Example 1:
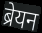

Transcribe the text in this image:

ब्रेयन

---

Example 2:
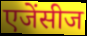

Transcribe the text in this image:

एजेंसीज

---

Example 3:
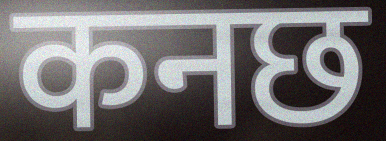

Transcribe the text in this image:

कनछ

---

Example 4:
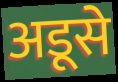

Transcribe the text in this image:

अडूसे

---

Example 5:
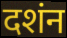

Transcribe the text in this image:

दशंन